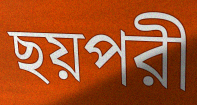
ছয়পরী